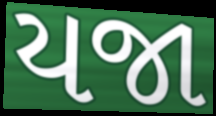
યજા